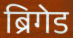
ब्रिगेड